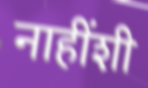
नाहींशी